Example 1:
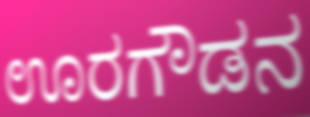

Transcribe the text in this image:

ಊರಗೌಡನ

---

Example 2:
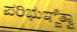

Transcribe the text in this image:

ಪರಿಭುಞ್ಜಿತ್ವಾ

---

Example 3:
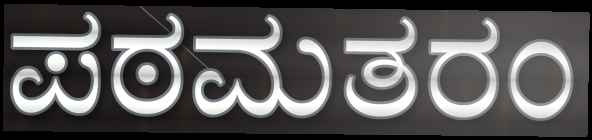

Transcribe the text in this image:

ಪಠಮತರಂ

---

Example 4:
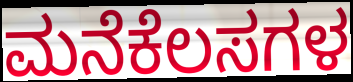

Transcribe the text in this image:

ಮನೆಕೆಲಸಗಳ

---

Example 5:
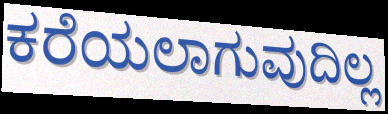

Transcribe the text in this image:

ಕರೆಯಲಾಗುವುದಿಲ್ಲ